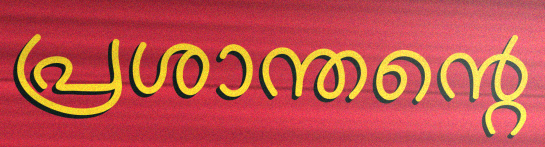
പ്രശാന്തന്റെ